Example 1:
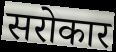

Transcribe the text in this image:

सरोकार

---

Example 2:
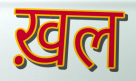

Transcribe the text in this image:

ख़ल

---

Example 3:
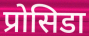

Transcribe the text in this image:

प्रोसिडा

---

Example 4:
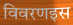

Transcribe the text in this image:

विवरणइस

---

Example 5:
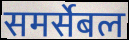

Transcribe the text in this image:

समर्सेबल